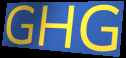
GHG